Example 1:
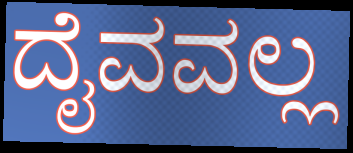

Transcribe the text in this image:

ದೈವವಲ್ಲ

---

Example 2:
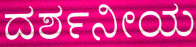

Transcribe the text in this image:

ದರ್ಶನೀಯ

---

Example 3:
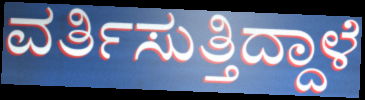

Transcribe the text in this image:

ವರ್ತಿಸುತ್ತಿದ್ದಾಳೆ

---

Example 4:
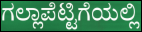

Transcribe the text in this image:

ಗಲ್ಲಾಪೆಟ್ಟಿಗೆಯಲ್ಲಿ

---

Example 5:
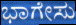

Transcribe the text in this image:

ಭಾಗೇಸು